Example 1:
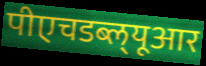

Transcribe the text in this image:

पीएचडब्ल्यूआर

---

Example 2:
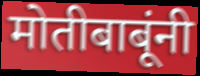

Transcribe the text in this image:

मोतीबाबूंनी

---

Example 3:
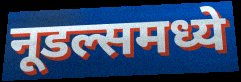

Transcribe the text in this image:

नूडल्समध्ये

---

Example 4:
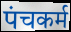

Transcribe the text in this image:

पंचकर्म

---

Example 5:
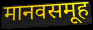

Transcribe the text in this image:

मानवसमूह